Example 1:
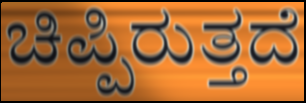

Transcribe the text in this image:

ಚಿಪ್ಪಿರುತ್ತದೆ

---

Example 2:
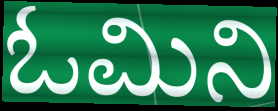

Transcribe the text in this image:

ಓಮಿನಿ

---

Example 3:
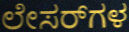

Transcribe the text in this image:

ಲೇಸರ್‌ಗಳ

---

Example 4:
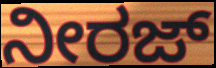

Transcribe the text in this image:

ನೀರಜ್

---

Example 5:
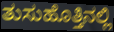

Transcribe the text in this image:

ತುಸುಹೊತ್ತಿನಲ್ಲಿ